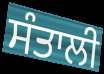
ਸੰਤਾਲੀ